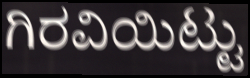
ಗಿರವಿಯಿಟ್ಟು